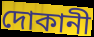
দোকানী